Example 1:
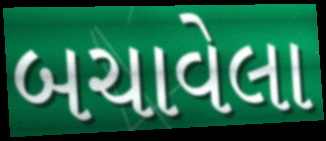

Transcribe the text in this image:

બચાવેલા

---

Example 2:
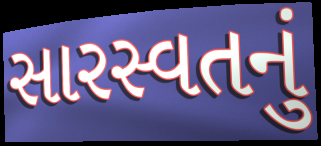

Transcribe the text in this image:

સારસ્વતનું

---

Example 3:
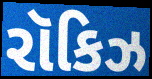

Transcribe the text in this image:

રૉકિઝ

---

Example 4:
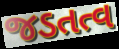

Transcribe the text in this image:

જડતત્વ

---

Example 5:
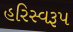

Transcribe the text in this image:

હરિસ્વરૂપ